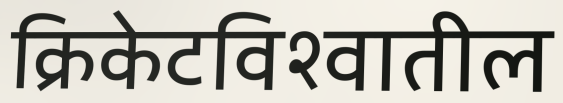
क्रिकेटविश्वातील